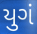
યુગં